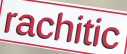
rachitic